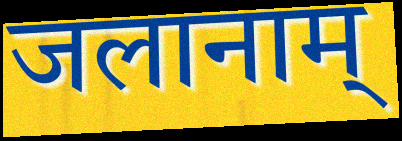
जलानाम्